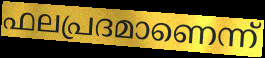
ഫലപ്രദമാണെന്ന്